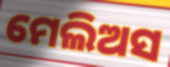
ମେଲିଅସ